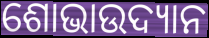
ଶୋଭାଉଦ୍ୟାନ